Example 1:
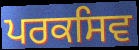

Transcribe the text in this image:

ਪਰਕਸਿਵ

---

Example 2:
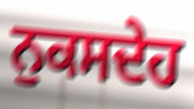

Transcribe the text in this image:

ਨੁਕਸਦੇਹ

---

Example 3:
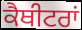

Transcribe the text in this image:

ਕੈਥੀਟਰਾਂ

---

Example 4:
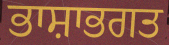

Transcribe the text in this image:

ਭਾਸ਼ਾਭਗਤ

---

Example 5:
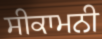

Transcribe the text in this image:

ਸੀਕਾਮਨੀ